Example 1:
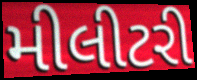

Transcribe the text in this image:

મીલીટરી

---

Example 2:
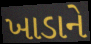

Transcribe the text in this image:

ખાડાને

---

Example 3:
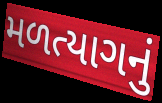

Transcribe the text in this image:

મળત્યાગનું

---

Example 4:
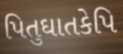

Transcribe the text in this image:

પિતુઘાતકેપિ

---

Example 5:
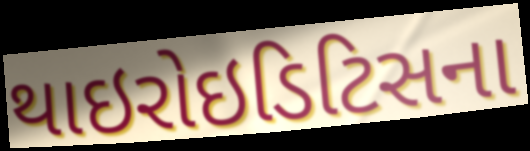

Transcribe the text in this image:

થાઇરોઇડિટિસના